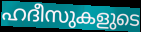
ഹദീസുകളുടെ